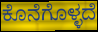
ಕೊನೆಗೊಳ್ಳದೆ